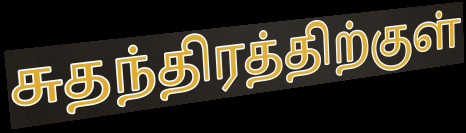
சுதந்திரத்திற்குள்